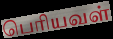
பெரியவள்